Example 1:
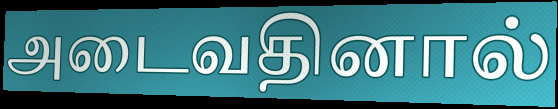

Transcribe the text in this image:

அடைவதினால்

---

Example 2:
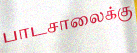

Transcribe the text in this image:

பாடசாலைக்கு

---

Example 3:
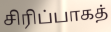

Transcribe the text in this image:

சிரிப்பாகத்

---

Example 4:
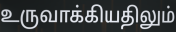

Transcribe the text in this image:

உருவாக்கியதிலும்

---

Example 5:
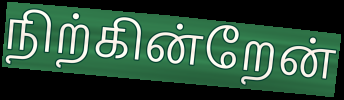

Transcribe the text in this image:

நிற்கின்றேன்